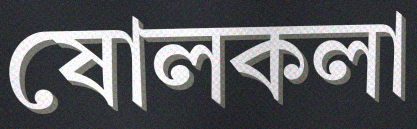
ষোলকলা